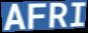
AFRI